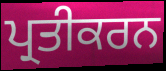
ਪ੍ਰਤੀਕਰਨ